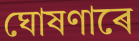
ঘোষণাৰে